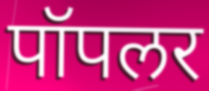
पॉपलर